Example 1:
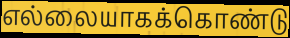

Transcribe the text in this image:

எல்லையாகக்கொண்டு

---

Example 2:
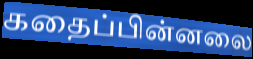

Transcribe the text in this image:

கதைப்பின்னலை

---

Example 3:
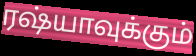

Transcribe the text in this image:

ரஷ்யாவுக்கும்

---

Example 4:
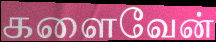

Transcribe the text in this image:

களைவேன்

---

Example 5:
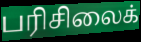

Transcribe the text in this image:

பரிசிலைக்